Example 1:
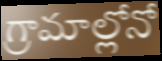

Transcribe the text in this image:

గ్రామాల్లోనో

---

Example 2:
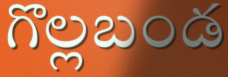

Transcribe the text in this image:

గొల్లబండ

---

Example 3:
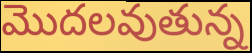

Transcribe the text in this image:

మొదలవుతున్న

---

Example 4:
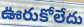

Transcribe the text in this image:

ఊరుకోలేదు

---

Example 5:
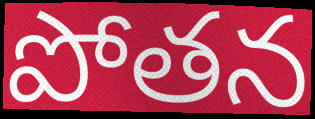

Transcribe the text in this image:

పోతన